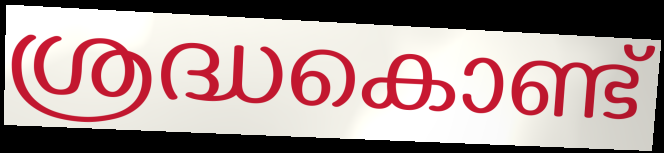
ശ്രദ്ധകൊണ്ട്